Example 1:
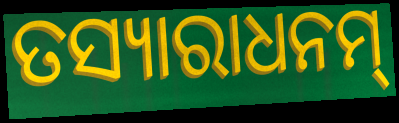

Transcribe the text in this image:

ତସ୍ୟାରାଧନମ୍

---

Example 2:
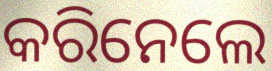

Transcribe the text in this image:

କରିନେଲେ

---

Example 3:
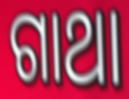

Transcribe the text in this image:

ଗାଥା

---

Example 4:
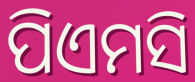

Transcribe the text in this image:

ପିଏମସି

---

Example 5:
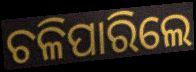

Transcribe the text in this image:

ଚଳିପାରିଲେ